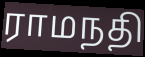
ராமநதி